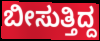
ಬೀಸುತ್ತಿದ್ದ